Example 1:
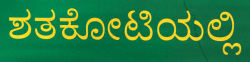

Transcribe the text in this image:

ಶತಕೋಟಿಯಲ್ಲಿ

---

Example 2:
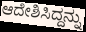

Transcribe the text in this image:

ಆದೇಶಿಸಿದ್ದನ್ನು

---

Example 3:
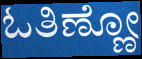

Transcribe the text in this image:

ಓತಿಣ್ಣೋ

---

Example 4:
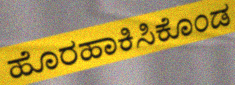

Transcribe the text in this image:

ಹೊರಹಾಕಿಸಿಕೊಂಡ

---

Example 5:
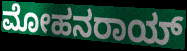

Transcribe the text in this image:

ಮೋಹನರಾಯ್